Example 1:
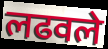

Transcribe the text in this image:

लढवले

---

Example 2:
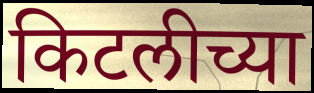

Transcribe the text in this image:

किटलीच्या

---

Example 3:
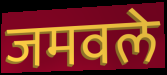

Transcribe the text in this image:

जमवले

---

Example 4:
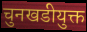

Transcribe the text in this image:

चुनखडीयुक्त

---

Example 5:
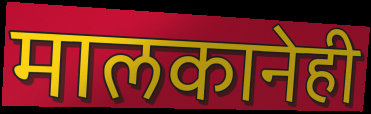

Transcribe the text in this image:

मालकानेही